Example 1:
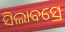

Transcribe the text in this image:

ସିଲାବସ୍ରେ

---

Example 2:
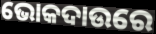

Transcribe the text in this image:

ଭୋକଦାଉରେ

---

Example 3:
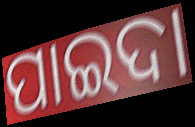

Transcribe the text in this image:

ପାଇଦା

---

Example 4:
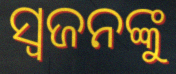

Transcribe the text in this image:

ସ୍ଵଜନଙ୍କୁ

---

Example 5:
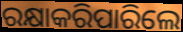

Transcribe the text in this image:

ରକ୍ଷାକରିପାରିଲେ